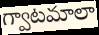
గ్వాటమాలా